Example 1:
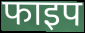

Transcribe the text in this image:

फाइप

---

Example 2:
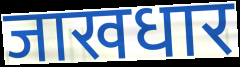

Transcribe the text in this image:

जाखधार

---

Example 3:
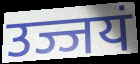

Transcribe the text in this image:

उज्जयं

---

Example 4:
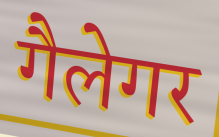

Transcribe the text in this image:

गैलेगर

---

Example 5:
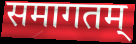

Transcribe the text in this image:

समागतम्